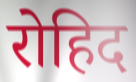
रोहिद